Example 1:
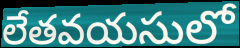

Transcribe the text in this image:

లేతవయసులో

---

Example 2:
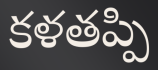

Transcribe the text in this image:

కళతప్పి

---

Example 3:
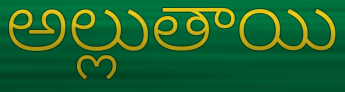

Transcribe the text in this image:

అల్లుతాయి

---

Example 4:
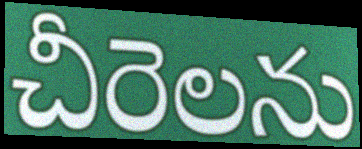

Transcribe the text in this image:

చీరెలను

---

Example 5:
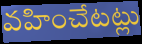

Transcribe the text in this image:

వహించేటట్లు